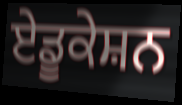
ਏਡੂਕੇਸ਼ਨ